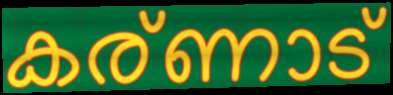
കര്ണാട്